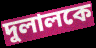
দুলালকে